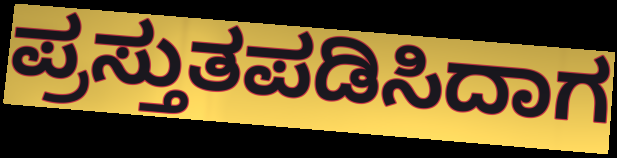
ಪ್ರಸ್ತುತಪಡಿಸಿದಾಗ